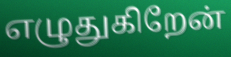
எழுதுகிறேன்